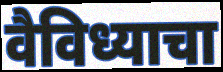
वैविध्याचा